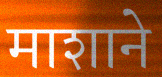
माशाने